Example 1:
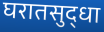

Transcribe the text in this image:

घरातसुद्धा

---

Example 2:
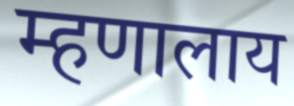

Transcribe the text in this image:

म्हणालाय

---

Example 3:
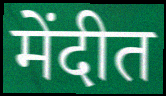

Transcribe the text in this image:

मेंदीत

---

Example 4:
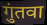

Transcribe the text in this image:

गुंतवा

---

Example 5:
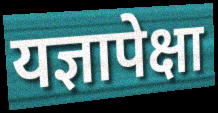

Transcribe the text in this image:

यज्ञापेक्षा